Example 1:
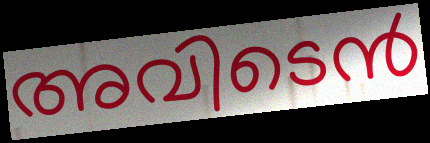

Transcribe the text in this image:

അവിടെൻ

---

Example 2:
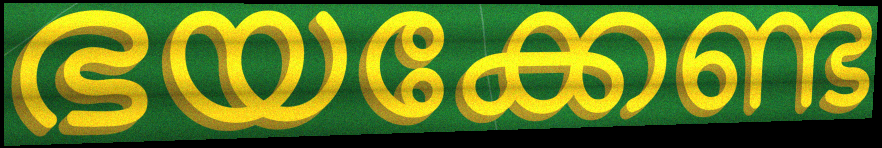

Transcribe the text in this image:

ഭയക്കേണ്ട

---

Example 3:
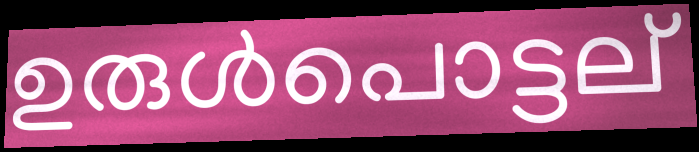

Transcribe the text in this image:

ഉരുൾപൊട്ടല്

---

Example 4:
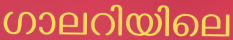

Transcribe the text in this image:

ഗാലറിയിലെ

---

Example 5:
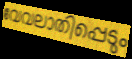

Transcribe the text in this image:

വേവലാതിപ്പെടും